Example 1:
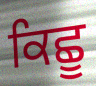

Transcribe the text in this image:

ਕਿਛੂ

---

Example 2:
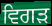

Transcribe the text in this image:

ਵਿਗੜ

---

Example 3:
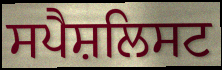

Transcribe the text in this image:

ਸਪੈਸ਼ਲਿਸਟ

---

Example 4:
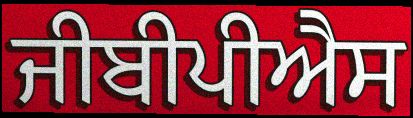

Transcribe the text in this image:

ਜੀਬੀਪੀਐਸ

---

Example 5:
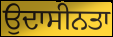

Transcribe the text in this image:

ਉਦਾਸੀਨਤਾ